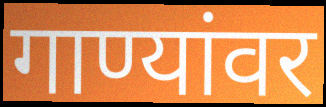
गाण्यांवर